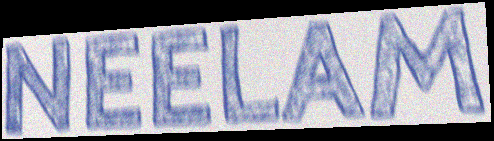
NEELAM